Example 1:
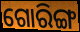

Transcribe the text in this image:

ଗୋରିଙ୍ଗ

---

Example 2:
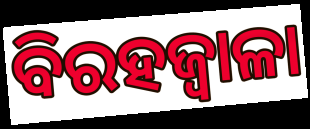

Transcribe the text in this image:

ବିରହଜ୍ୱାଳା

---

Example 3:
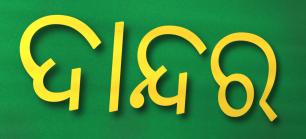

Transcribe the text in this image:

ଦାନ୍ଦର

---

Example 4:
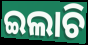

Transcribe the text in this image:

ଇଲାଚି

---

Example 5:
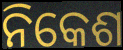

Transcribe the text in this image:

ନିକେଶ